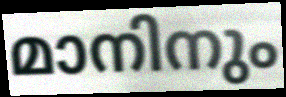
മാനിനും